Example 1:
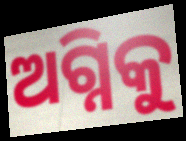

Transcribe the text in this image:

ଅଗ୍ନିକୁ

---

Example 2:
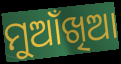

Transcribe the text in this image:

ମୁଆଁଖିଆ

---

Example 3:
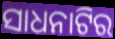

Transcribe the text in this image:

ସାଧନାଟିର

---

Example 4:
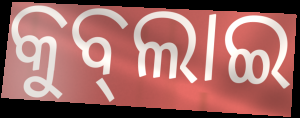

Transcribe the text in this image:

କୁବ୍‌ଲାଇ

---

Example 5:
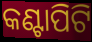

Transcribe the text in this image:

କଣ୍ଟାପିଟି